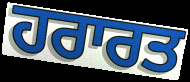
ਹਰਾਰਤ